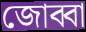
জোব্বা